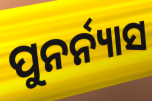
ପୁନର୍ନ୍ୟାସ